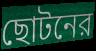
ছোটনের